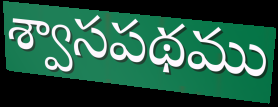
శ్వాసపథము